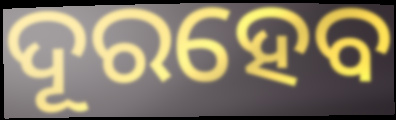
ଦୂରହେବ